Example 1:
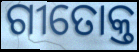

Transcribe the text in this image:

ଗୀତୋକ୍ତ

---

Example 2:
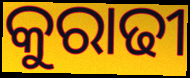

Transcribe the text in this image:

କୁରାଢୀ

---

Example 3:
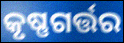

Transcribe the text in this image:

କୃଷ୍ଣଗର୍ତ୍ତର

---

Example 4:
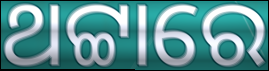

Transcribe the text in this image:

ଥଟ୍ଟାରେ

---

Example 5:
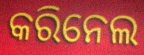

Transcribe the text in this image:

କରିନେଲ